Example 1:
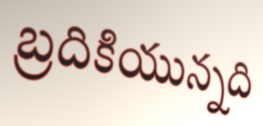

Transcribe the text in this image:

బ్రదికియున్నది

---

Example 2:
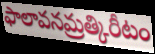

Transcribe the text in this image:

ఫాలావనమ్రత్కిరీటం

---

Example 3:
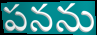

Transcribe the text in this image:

పనను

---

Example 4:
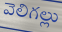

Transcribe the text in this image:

వెలిగల్లు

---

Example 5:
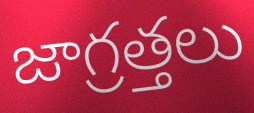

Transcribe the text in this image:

జాగ్రత్తలు